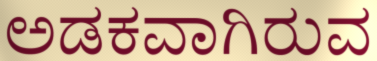
ಅಡಕವಾಗಿರುವ